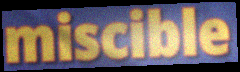
miscible